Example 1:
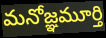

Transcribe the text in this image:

మనోజ్ఞమూర్తి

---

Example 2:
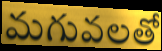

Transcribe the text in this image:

మగువలతో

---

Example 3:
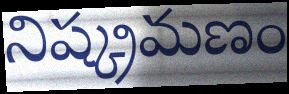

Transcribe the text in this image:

నిష్క్రమణం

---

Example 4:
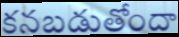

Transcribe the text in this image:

కనబడుతోందా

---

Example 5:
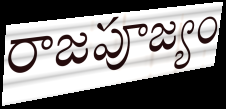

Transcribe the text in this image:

రాజపూజ్యం